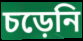
চড়েনি